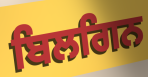
ਬਿਲਗਿਨ